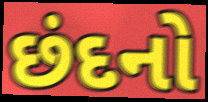
છંદનો